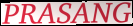
PRASANG